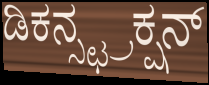
ಡಿಕನ್ಸ್ಟ್ರಕ್ಷನ್